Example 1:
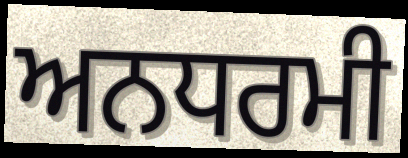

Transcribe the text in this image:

ਅਨਧਰਮੀ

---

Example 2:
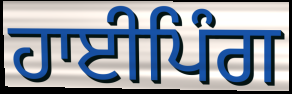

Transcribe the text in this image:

ਹਾਈਪਿੰਗ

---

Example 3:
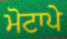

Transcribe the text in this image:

ਮੋਟਾਪੇ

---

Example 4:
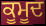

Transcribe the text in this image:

ਕੂਮੂਦ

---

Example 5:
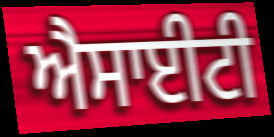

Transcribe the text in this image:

ਐਸਾਈਟੀ